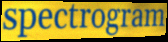
spectrogram